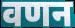
वणन